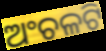
ଅଂଚଳଟି